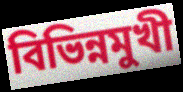
বিভিন্নমুখী